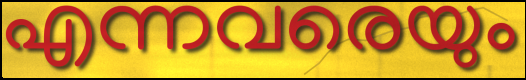
എന്നവരെയും